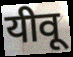
यीवू